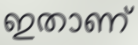
ഇതാണ്